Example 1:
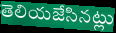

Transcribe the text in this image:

తెలియజేసినట్లు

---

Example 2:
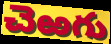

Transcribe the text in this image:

చెఱగు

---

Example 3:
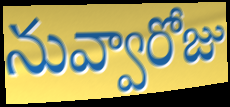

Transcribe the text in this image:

నువ్వారోజు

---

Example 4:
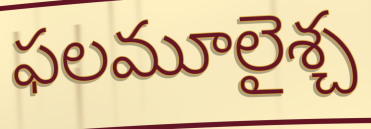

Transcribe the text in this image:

ఫలమూలైశ్చ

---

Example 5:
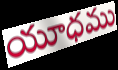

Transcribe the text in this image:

యూధము